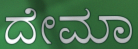
ದೇಮಾ